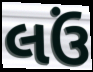
લઉં